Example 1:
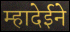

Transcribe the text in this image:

म्हादेईने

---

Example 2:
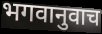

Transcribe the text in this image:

भगवानुवाच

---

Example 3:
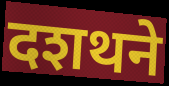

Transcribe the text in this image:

दशथने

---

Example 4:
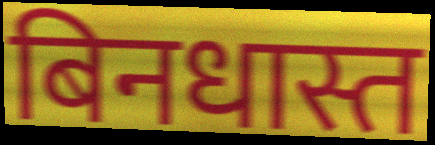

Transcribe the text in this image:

बिनधास्त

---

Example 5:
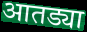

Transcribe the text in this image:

आतड्या